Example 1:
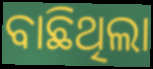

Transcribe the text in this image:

ବାଛିଥିଲା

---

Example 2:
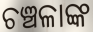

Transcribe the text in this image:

ଚଞ୍ଚଳାଙ୍କ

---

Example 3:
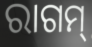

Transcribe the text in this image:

ରାଗମ୍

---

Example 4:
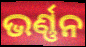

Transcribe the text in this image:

ଭର୍ଣ୍ଣନ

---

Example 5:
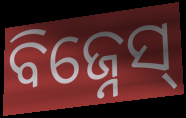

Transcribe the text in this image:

ବିଜ୍ନେସ୍